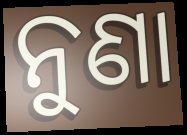
ନୁଣା